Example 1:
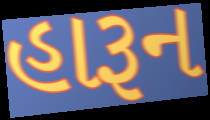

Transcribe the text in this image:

હારૂન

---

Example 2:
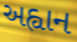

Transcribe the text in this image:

અહ્વાન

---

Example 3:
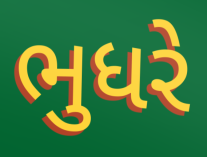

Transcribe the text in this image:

ભુધરે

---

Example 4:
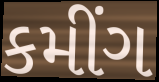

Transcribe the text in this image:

કમીંગ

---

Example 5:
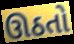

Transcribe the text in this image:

ઊઠતો